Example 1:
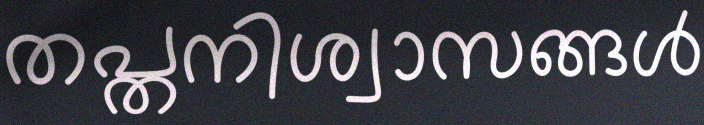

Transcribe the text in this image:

തപ്തനിശ്വാസങ്ങൾ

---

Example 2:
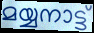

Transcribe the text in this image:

മയ്യനാട്ട്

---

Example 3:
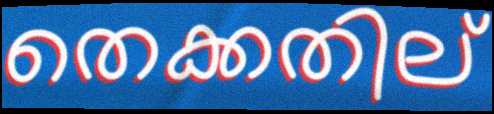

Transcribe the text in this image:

തെക്കതില്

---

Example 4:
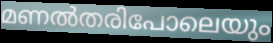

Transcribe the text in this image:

മണൽതരിപോലെയും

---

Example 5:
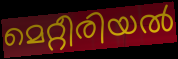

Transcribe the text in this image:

മെറ്റീരിയൽ